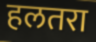
हलतरा